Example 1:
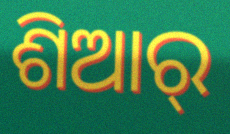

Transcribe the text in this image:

ଶିଆର୍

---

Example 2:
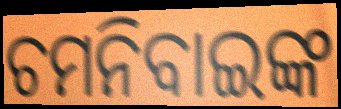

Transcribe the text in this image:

ଚମନିବାଇଙ୍କ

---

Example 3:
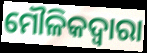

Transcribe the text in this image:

ମୌଳିକଦ୍ଵାରା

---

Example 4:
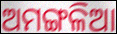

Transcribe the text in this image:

ଅମଙ୍ଗଳିଆ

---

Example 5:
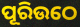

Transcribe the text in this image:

ପୂରିଉଠେ